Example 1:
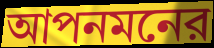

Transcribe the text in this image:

আপনমনের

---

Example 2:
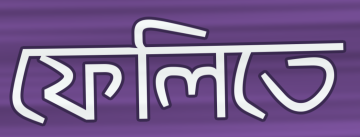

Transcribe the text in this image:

ফেলিতে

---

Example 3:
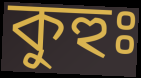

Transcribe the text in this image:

কুহুঃ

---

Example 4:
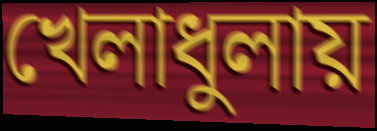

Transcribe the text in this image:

খেলাধুলায়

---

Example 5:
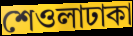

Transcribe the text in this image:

শেওলাঢাকা